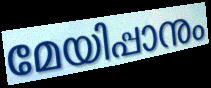
മേയിപ്പാനും